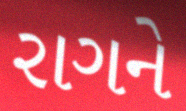
રાગને